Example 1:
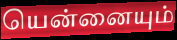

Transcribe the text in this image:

யென்னையும்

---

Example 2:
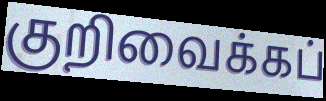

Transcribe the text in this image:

குறிவைக்கப்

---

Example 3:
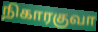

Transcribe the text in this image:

நிகாரகுவா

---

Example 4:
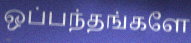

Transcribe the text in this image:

ஒப்பந்தங்களே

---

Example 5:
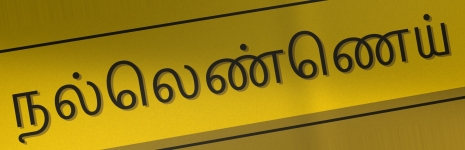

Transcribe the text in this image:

நல்லெண்ணெய்